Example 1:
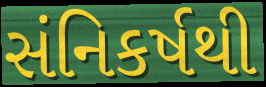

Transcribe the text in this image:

સંનિકર્ષથી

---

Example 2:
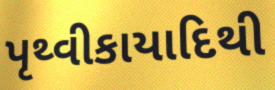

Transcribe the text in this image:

પૃથ્વીકાયાદિથી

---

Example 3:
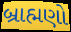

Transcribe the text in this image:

બ્રાહ્મણો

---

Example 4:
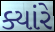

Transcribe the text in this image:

ક્યાંરે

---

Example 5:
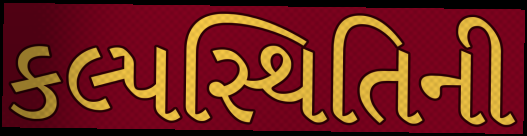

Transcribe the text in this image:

કલ્પસ્થિતિની